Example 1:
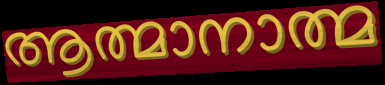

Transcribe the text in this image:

ആത്മാനാത്മ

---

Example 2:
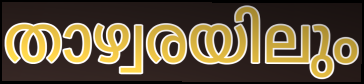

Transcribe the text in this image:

താഴ്വരയിലും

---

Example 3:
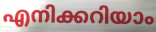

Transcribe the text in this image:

എനിക്കറിയാം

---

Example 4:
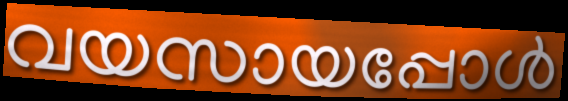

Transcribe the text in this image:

വയസായപ്പോൾ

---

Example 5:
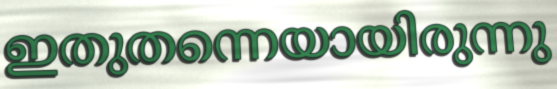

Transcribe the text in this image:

ഇതുതന്നെയായിരുന്നു